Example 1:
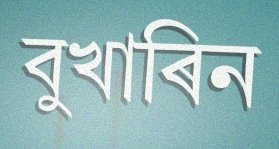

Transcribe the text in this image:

বুখাৰিন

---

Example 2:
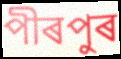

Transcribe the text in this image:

পীৰপুৰ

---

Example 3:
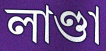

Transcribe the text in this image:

লাণ্ডা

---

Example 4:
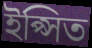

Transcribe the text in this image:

ইপ্সিত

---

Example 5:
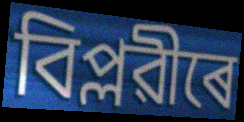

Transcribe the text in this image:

বিপ্লৱীৰে